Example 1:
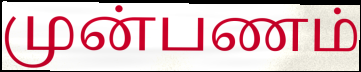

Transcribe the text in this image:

முன்பணம்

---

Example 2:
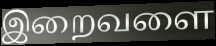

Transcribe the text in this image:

இறைவளை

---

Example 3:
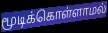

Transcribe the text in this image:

மூடிக்கொள்ளாமல்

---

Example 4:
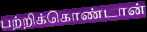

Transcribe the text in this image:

பற்றிக்கொண்டான்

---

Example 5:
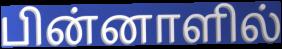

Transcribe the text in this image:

பின்னாளில்